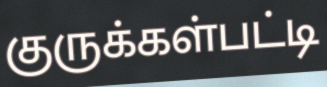
குருக்கள்பட்டி